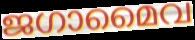
ജഗാമൈവ